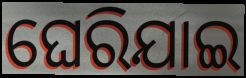
ଘେରିଯାଇ